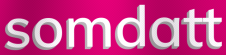
somdatt